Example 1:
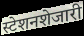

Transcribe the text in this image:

स्टेशनशेजारी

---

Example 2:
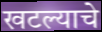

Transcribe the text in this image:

खटल्याचे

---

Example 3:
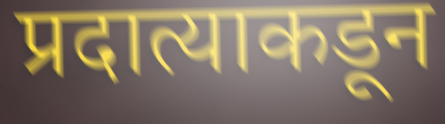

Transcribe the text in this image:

प्रदात्याकडून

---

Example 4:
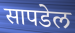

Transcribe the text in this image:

सापडेल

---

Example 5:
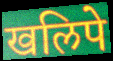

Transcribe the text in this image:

खलिपे